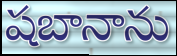
షబానాను